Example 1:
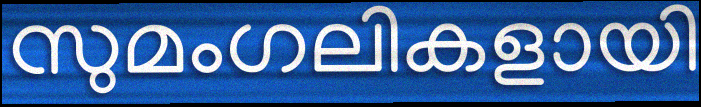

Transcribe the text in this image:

സുമംഗലികളായി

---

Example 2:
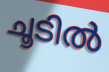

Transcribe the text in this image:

ചൂടിൽ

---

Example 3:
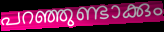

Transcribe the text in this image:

പറഞ്ഞുണ്ടാക്കും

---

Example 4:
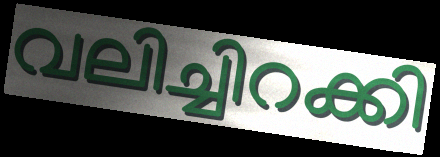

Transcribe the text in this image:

വലിച്ചിറക്കി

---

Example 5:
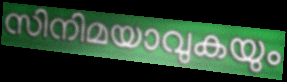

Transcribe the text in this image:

സിനിമയാവുകയും